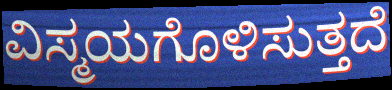
ವಿಸ್ಮಯಗೊಳಿಸುತ್ತದೆ